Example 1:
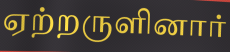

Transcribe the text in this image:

ஏற்றருளினார்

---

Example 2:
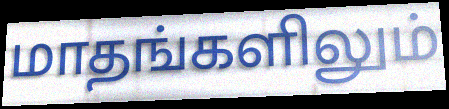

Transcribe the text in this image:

மாதங்களிலும்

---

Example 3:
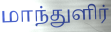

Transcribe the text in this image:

மாந்துளிர்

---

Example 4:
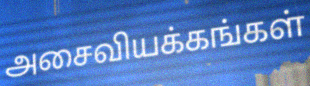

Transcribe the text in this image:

அசைவியக்கங்கள்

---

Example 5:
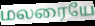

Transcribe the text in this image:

மலரையே